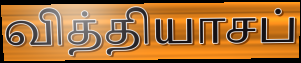
வித்தியாசப்